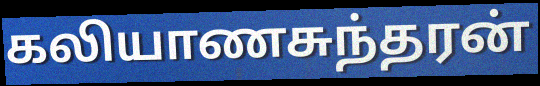
கலியாணசுந்தரன்